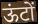
ऊंटों